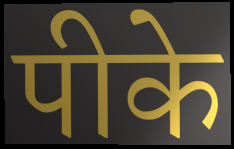
पीके